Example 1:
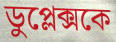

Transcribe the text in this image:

ডুপ্লেক্সকে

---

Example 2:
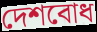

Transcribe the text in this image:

দেশবোধ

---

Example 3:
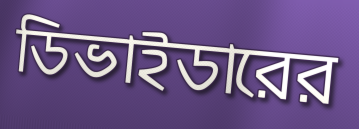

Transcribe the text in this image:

ডিভাইডারের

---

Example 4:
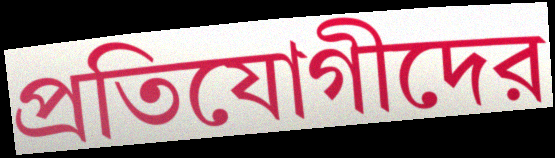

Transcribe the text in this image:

প্রতিযোগীদের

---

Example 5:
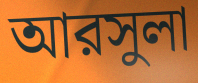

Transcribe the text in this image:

আরসুলা